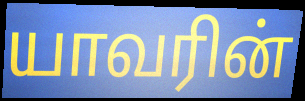
யாவரின்